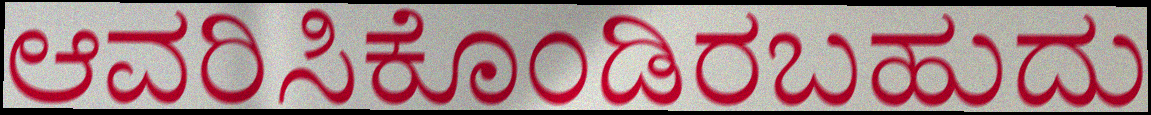
ಆವರಿಸಿಕೊಂಡಿರಬಹುದು